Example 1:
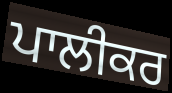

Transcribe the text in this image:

ਪਾਲੀਕਰ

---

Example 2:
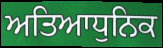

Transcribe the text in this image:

ਅਤਿਆਧੁਨਿਕ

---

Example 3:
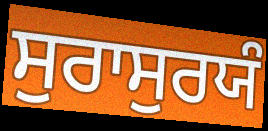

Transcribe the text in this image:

ਸੁਰਾਸੁਰਯੰ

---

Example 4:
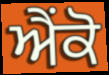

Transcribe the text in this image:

ਐਂਕੋ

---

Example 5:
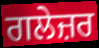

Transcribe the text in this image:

ਗਲੇਜ਼ਰ